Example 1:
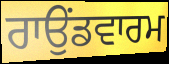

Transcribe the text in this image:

ਰਾਉਂਡਵਾਰਮ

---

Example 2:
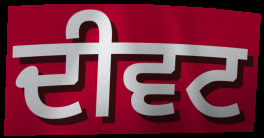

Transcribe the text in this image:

ਦੀਵਟ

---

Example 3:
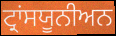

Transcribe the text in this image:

ਟ੍ਰਾਂਸਯੂਨੀਅਨ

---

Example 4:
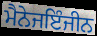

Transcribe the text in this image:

ਮੈਨੇਜਇੰਜੀਨ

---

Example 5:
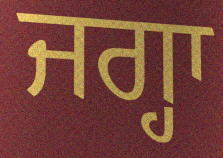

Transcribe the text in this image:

ਜਗ੍ਹਾ